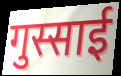
गुस्साई